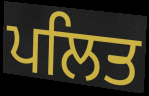
ਪਲਿਤ